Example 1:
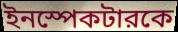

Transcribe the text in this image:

ইনস্পেকটারকে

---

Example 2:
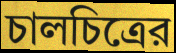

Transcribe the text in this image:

চালচিত্রের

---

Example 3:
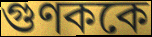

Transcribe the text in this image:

গুণককে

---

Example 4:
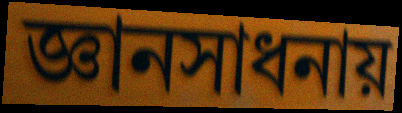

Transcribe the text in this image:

জ্ঞানসাধনায়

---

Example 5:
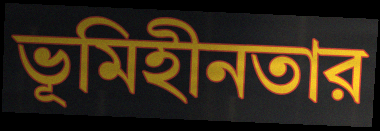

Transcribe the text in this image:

ভূমিহীনতার